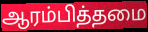
ஆரம்பித்தமை